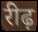
रीढ़